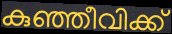
കുഞ്ഞീവിക്ക്